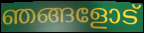
ഞങ്ങളോട്